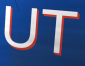
UT